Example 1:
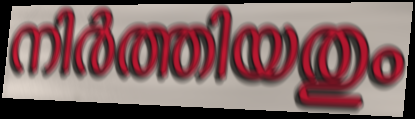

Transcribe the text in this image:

നിർത്തിയതും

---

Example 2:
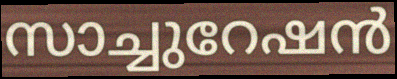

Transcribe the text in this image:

സാച്ചുറേഷൻ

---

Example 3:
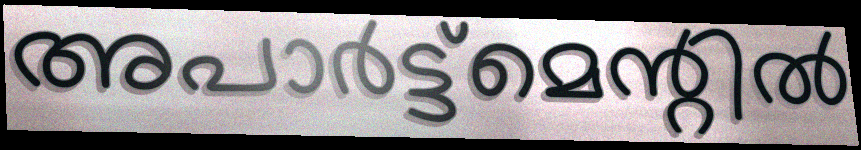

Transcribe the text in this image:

അപാർട്ട്മെന്റിൽ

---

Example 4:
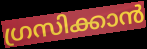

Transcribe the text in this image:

ഗ്രസിക്കാൻ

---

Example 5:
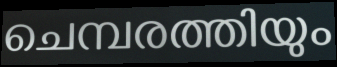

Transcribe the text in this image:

ചെമ്പരത്തിയും